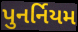
પુનર્નિયમ